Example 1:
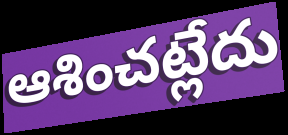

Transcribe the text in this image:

ఆశించట్లేదు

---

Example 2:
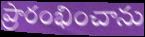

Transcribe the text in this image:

ప్రారంభించాను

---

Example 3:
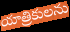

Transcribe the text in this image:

యాత్రికులను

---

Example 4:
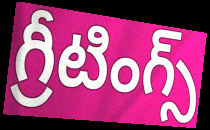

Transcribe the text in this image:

గ్రీటింగ్స్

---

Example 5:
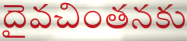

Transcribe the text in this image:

దైవచింతనకు